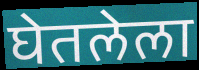
घेतलेला